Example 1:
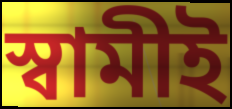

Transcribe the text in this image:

স্বামীই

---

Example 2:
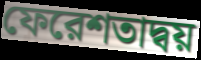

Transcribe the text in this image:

ফেরেশতাদ্বয়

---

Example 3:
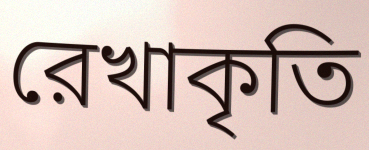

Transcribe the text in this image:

রেখাকৃতি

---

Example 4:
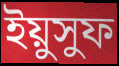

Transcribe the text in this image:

ইয়ুসুফ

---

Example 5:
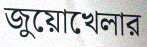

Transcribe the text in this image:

জুয়োখেলার